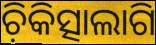
ଚ଼ିକିତ୍ସାଲାଗି